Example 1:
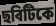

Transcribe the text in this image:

ছবিটিকে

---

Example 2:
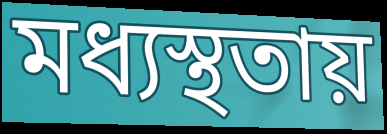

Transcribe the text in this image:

মধ্যস্থতায়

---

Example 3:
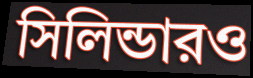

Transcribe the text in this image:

সিলিন্ডারও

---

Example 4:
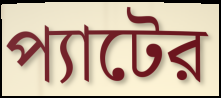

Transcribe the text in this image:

প্যাটের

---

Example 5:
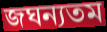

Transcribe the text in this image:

জঘন্যতম